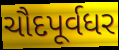
ચૌદપૂર્વધર